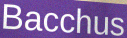
Bacchus